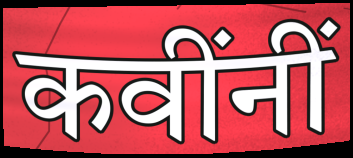
कवींनीं